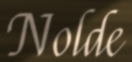
Nolde